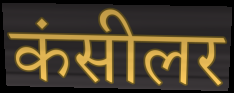
कंसीलर